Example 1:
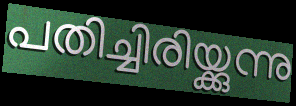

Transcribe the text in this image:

പതിച്ചിരിയ്ക്കുന്നു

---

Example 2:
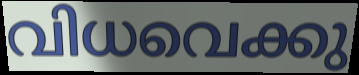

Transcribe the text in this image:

വിധവെക്കു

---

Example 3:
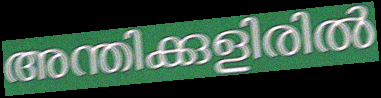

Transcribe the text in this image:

അന്തിക്കുളിരിൽ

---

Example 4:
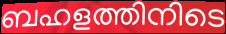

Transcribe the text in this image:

ബഹളത്തിനിടെ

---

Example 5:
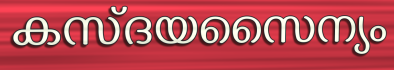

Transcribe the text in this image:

കസ്ദയസൈന്യം